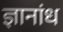
ज्ञानांध